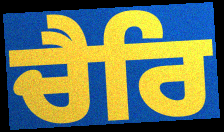
ਚੈਰਿ